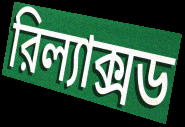
রিল্যাক্সড